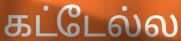
கட்டேல்ல